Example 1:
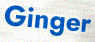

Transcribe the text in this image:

Ginger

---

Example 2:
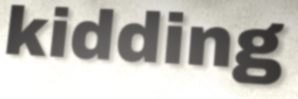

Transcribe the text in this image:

kidding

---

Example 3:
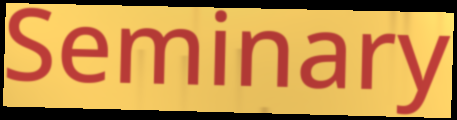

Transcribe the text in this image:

Seminary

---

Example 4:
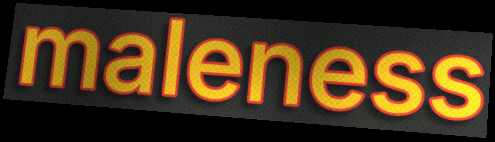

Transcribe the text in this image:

maleness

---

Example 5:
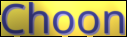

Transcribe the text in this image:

Choon